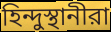
হিন্দুস্থানীরা